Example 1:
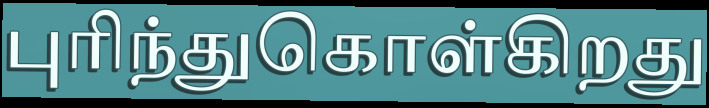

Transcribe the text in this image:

புரிந்துகொள்கிறது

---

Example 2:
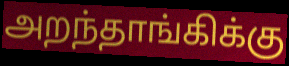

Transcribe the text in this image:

அறந்தாங்கிக்கு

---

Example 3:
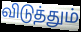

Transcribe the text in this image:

விடுத்தும்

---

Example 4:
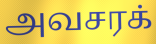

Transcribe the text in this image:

அவசரக்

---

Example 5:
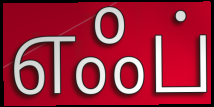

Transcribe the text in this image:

எஃப்